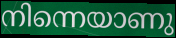
നിന്നെയാണു